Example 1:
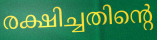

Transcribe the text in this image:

രക്ഷിച്ചതിന്റെ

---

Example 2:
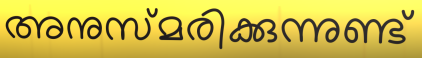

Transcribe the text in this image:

അനുസ്മരിക്കുന്നുണ്ട്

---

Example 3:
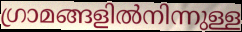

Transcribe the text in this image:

ഗ്രാമങ്ങളിൽനിന്നുള്ള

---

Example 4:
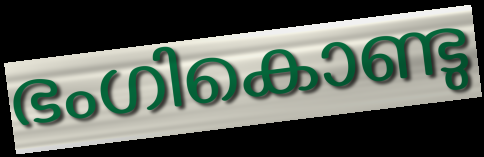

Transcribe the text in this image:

ഭംഗികൊണ്ടു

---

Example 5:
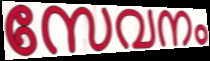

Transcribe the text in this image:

സേവനം